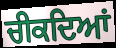
ਚੀਕਦਿਆਂ